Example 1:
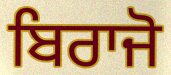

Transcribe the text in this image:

ਬਿਰਾਜੋ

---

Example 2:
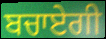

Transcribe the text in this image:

ਬਚਾਏਗੀ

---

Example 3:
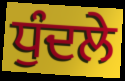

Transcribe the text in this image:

ਧੁੰਦਲੇ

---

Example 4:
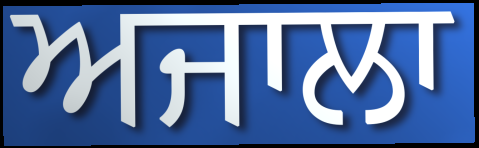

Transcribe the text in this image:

ਅਜਾਲਾ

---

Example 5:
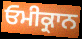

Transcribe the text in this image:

ਓਮੀਕ੍ਰਾਨ